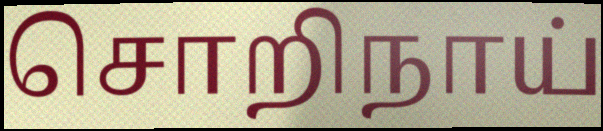
சொறிநாய்